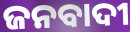
ଜନବାଦୀ